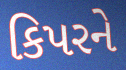
કિપરને